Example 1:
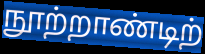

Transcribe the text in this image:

நூற்றாண்டிற்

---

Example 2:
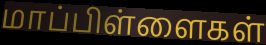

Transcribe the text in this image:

மாப்பிள்ளைகள்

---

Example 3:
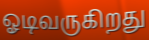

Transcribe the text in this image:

ஓடிவருகிறது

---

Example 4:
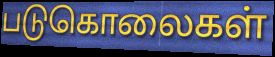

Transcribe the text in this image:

படுகொலைகள்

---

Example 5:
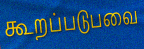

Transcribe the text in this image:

கூறப்படுபவை